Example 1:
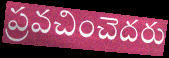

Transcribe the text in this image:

ప్రవచించెదరు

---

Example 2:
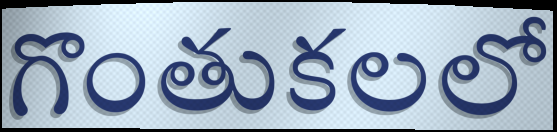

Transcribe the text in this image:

గొంతుకలలో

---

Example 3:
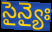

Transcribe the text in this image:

సైన్యైః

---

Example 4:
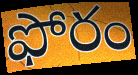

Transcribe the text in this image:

ఫోరం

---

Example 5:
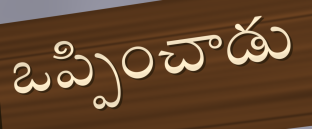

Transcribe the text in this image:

ఒప్పించాడు